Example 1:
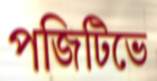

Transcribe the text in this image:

পজিটিভে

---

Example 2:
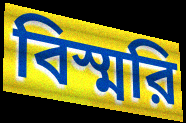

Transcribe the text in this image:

বিস্মরি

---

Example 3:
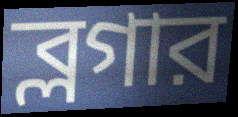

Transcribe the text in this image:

ব্লগার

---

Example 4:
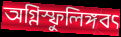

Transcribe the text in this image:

অগ্নিস্ফুলিঙ্গবৎ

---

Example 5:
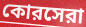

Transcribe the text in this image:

কোরসেরা